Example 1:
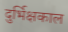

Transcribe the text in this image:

दुर्भिक्षकाल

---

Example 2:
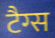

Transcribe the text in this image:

टैग्स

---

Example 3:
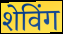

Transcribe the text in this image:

शेविंग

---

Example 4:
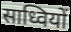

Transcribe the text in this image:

साध्वियों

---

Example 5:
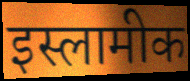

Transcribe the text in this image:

इस्लामीक